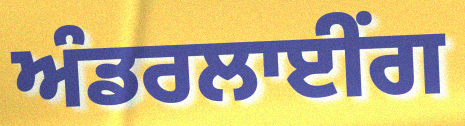
ਅੰਡਰਲਾਈੰਗ